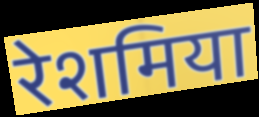
रेशमिया